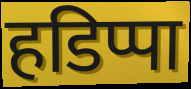
हडिप्पा